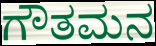
ಗೌತಮನ